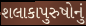
શલાકાપુરુષોનું